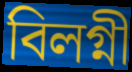
বিলগ্নী